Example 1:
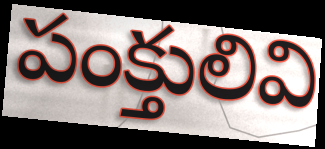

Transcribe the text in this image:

పంక్తులివి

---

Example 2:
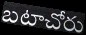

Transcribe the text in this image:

బటాచోరు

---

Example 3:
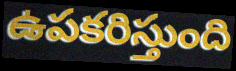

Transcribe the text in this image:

ఉపకరిస్తుంది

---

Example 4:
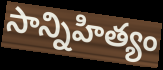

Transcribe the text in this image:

సాన్నిహిత్యం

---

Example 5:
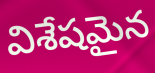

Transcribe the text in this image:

విశేషమైన